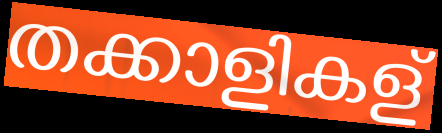
തക്കാളികള്